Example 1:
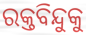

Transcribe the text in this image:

ରକ୍ତବିନ୍ଦୁକୁ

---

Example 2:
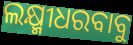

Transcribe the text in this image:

ଲକ୍ଷ୍ମୀଧରବାବୁ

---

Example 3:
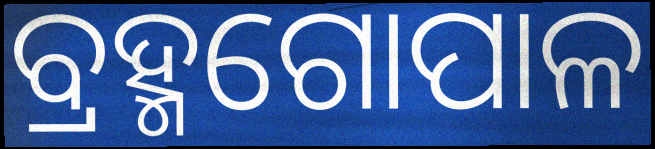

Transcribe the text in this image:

ବ୍ରହ୍ମଗୋପାଳ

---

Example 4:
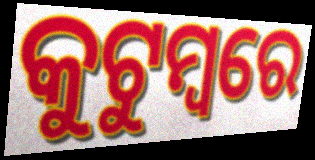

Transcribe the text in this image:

କୁଟୁମ୍ଵରେ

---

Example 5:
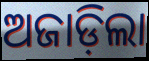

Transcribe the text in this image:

ଅଜାଡ଼ିଲା